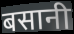
बसानी